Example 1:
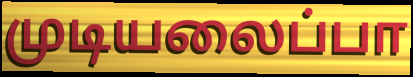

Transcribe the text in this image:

முடியலைப்பா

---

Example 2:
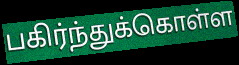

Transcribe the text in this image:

பகிர்ந்துக்கொள்ள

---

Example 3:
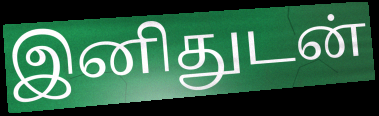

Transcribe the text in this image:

இனிதுடன்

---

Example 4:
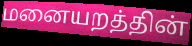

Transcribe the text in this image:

மனையறத்தின்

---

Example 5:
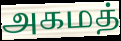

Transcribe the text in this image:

அகமத்